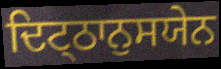
ਦਿਟ੍ਠਾਨੁਸਯੇਨ